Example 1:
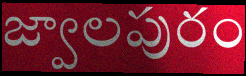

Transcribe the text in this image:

జ్వాలపురం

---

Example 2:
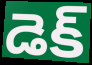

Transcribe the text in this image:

డెక్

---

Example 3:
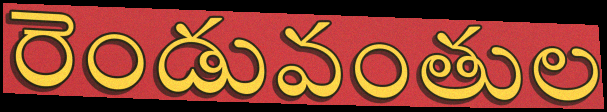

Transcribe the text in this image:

రెండువంతుల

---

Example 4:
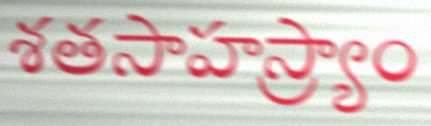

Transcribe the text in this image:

శతసాహస్ర్యాం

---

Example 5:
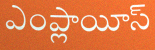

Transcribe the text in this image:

ఎంప్లాయీస్